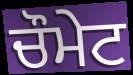
ਚੌਮੇਟ